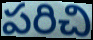
పరిచి